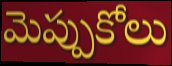
మెప్పుకోలు